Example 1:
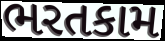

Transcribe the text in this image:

ભરતકામ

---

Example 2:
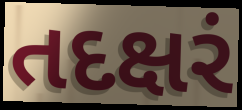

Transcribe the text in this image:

તદક્ષરં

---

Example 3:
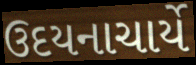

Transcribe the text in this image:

ઉદયનાચાર્યે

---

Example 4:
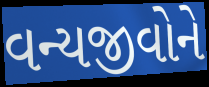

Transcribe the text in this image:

વન્યજીવોને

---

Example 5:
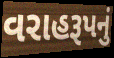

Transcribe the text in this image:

વરાહરૂપનું